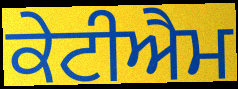
ਕੇਟੀਐਮ